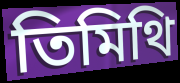
তিমিথি